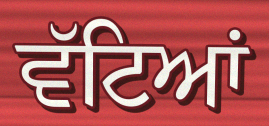
ਵੱਟਿਆਂ